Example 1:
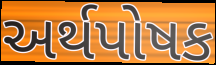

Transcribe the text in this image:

અર્થપોષક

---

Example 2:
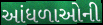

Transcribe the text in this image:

આંધળાઓની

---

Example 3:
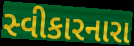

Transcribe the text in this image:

સ્વીકારનારા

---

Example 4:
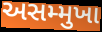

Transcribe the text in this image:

અસમ્મુખા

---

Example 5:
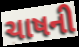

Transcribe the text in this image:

ચાષની